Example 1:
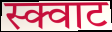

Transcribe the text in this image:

स्क्वाट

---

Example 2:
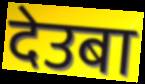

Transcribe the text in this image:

देउबा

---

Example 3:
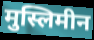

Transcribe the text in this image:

मुस्लिमीन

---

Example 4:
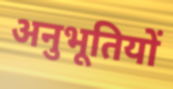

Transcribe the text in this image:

अनुभूतियों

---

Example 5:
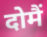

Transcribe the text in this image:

दोमैं